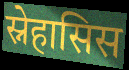
स्नेहासिस